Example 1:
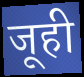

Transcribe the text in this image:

जूही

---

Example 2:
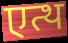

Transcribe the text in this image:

एत्थ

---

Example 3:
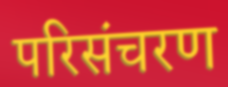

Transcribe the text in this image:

परिसंचरण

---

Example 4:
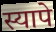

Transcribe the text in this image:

स्यापे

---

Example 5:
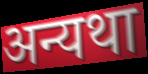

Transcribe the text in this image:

अन्यथा